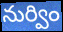
నుర్విం